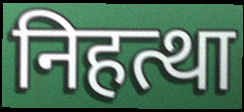
निहत्था